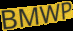
BMWP